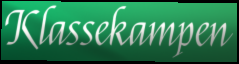
Klassekampen